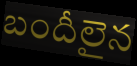
బందీలైన